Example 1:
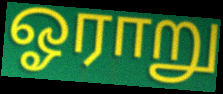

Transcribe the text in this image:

ஓராறு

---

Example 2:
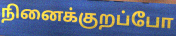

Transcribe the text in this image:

நினைக்குறப்போ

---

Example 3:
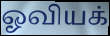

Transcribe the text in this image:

ஓவியக்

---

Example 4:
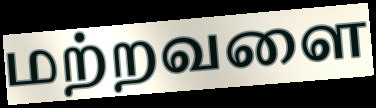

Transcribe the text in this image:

மற்றவளை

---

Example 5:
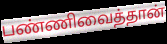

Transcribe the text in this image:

பண்ணிவைத்தான்